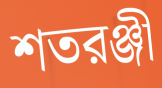
শতরঞ্জী